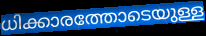
ധിക്കാരത്തോടെയുള്ള